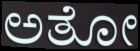
ಅತೋ